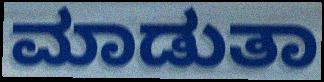
ಮಾಡುತಾ